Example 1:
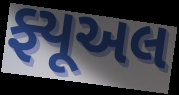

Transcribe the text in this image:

ફ્યૂઅલ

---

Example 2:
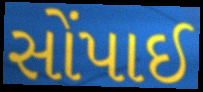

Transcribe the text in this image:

સોંપાઈ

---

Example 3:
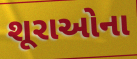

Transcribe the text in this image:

શૂરાઓના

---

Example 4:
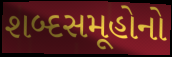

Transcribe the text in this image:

શબ્દસમૂહોનો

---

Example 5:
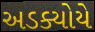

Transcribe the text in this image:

અડક્યોયે